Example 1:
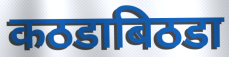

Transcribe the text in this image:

कठडाबिठडा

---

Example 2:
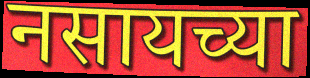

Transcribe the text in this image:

नसायच्या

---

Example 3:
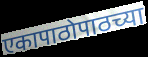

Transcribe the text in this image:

एकापाठोपाठच्या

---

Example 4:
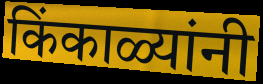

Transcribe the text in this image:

किंकाळ्यांनी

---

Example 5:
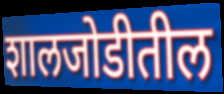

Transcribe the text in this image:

शालजोडीतील